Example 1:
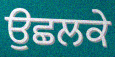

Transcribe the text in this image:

ਉਛਲਕੇ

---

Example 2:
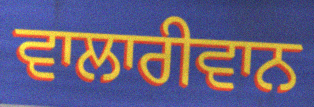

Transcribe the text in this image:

ਵਾਲਾਰੀਵਾਨ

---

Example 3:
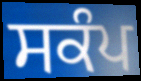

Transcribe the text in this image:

ਸਕੰਪ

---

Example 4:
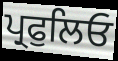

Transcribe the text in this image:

ਪ੍ਰਫੁਲਿਓ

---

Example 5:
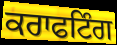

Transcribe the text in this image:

ਕਰਾਫਟਿੰਗ